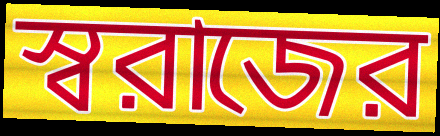
স্বরাজের